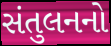
સંતુલનનો